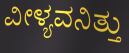
ವೀಳ್ಯವನಿತ್ತು